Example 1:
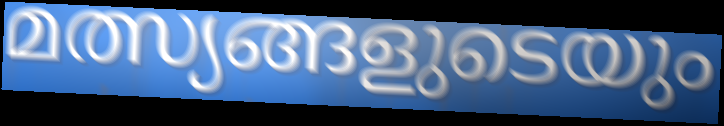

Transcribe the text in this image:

മത്സ്യങ്ങളുടെയും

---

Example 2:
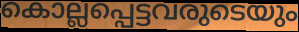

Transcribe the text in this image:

കൊല്ലപ്പെട്ടവരുടെയും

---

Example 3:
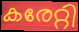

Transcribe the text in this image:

കരേറ്റി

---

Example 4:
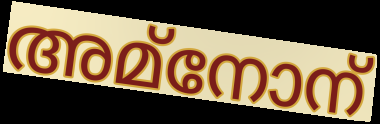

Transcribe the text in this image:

അമ്നോന്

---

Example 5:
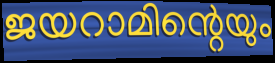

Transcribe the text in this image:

ജയറാമിന്റെയും